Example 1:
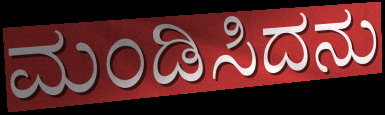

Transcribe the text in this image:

ಮಂಡಿಸಿದನು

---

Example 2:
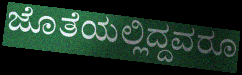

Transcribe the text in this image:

ಜೊತೆಯಲ್ಲಿದ್ದವರೂ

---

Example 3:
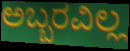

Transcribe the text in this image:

ಅಬ್ಬರವಿಲ್ಲ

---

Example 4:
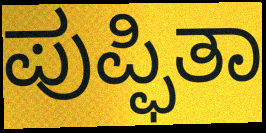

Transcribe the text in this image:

ಪುಪ್ಫಿತಾ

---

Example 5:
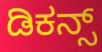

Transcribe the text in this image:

ಡಿಕನ್ಸ್